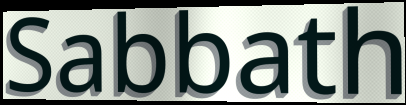
Sabbath